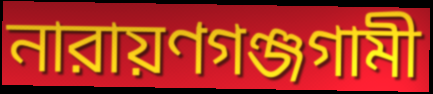
নারায়ণগঞ্জগামী